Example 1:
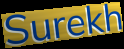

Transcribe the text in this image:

Surekh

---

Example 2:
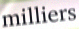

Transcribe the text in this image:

milliers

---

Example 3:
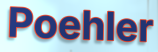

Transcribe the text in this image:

Poehler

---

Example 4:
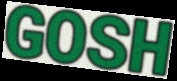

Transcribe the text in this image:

GOSH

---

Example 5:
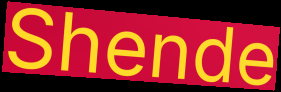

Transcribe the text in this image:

Shende